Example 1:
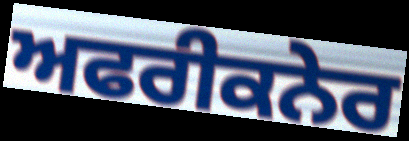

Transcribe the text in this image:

ਅਫਰੀਕਨੇਰ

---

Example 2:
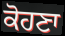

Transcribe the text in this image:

ਕੋਹਣਾ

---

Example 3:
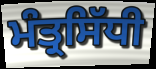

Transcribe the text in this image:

ਮੰਤ੍ਰਸਿੱਧੀ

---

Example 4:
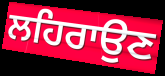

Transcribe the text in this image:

ਲਹਿਰਾਉਣ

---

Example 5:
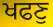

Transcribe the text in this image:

ਖਫਣੁ